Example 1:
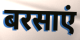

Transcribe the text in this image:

बरसाएं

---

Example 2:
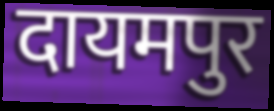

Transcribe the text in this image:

दायमपुर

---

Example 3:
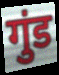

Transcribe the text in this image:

गुंड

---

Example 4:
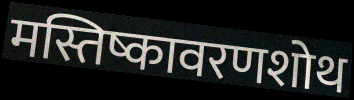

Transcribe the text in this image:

मस्तिष्कावरणशोथ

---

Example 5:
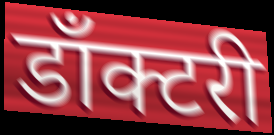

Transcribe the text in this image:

डाँक्टरी